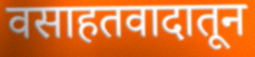
वसाहतवादातून